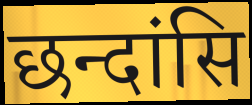
छन्दांसि